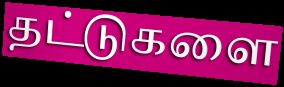
தட்டுகளை